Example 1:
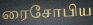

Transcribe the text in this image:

ரைசோபிய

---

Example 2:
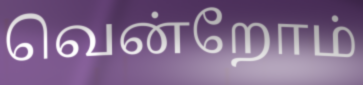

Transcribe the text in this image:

வென்றோம்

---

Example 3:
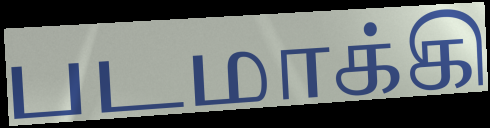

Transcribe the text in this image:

படமாக்கி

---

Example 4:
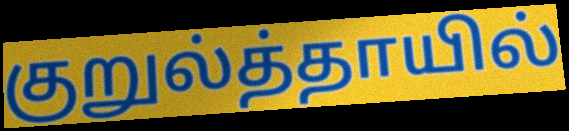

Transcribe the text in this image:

குறுல்த்தாயில்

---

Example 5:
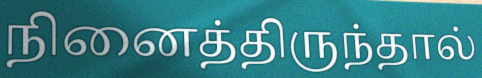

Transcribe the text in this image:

நினைத்திருந்தால்